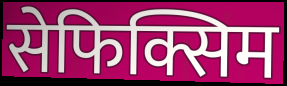
सेफिक्सिम